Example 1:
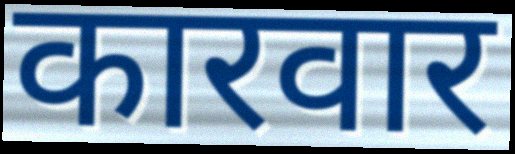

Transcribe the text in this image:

कारवार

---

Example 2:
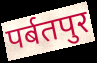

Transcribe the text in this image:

पर्बतपुर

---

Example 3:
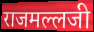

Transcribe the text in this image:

राजमल्लजी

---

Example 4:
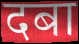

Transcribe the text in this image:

दबा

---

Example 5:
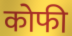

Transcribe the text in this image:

कोफी